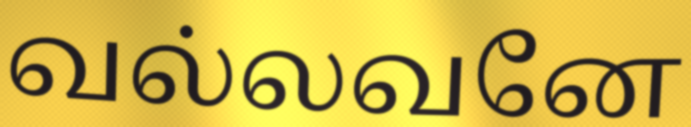
வல்லவனே